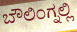
ಬೌಲಿಂಗ್ನಲ್ಲಿ